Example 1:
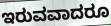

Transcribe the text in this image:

ಇರುವವಾದರೂ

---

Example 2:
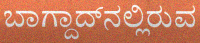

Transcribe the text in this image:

ಬಾಗ್ದಾದ್‌ನಲ್ಲಿರುವ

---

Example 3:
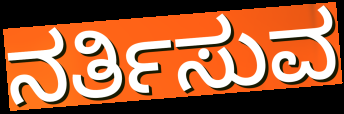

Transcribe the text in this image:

ನರ್ತಿಸುವ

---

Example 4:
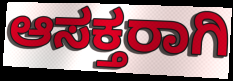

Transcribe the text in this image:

ಆಸಕ್ತರಾಗಿ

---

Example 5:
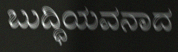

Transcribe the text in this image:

ಬುದ್ಧಿಯವನಾದ